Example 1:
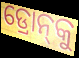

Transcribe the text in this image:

ଡ୍ରୋନ୍‌କୁ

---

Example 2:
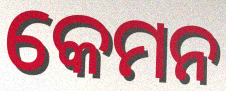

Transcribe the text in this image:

କେମନ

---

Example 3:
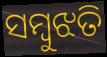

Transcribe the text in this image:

ସମ୍ବୁଝତି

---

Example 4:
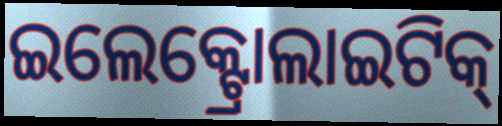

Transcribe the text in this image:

ଇଲେକ୍ଟ୍ରୋଲାଇଟିକ୍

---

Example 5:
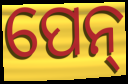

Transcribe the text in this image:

ପେନ୍